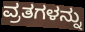
ವ್ರತಗಳನ್ನು